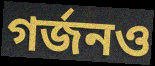
গর্জনও